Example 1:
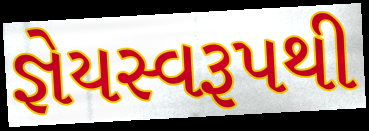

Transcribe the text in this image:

જ્ઞેયસ્વરૂપથી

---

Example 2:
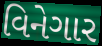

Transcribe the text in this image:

વિનેગાર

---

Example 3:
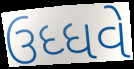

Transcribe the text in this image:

ઉધ્ધવે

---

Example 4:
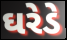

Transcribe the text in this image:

ઘરેડે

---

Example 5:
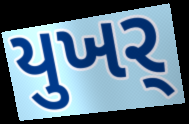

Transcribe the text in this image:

યુખર્